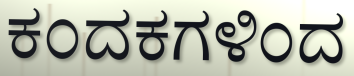
ಕಂದಕಗಳಿಂದ